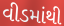
વીડમાંથી